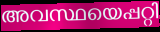
അവസ്ഥയെപ്പറ്റി